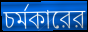
চর্মকারের